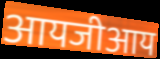
आयजीआय